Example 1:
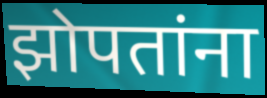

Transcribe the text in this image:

झोपतांना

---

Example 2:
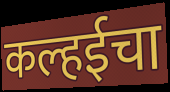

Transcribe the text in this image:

कल्हईचा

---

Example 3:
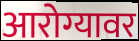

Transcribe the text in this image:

आरोग्यावर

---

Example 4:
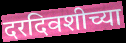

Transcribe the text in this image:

दरदिवशीच्या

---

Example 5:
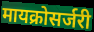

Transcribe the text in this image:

मायक्रोसर्जरी